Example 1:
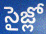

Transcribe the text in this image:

సైజ్లో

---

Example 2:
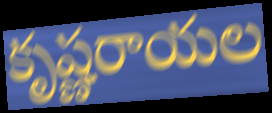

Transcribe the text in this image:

కృష్ణరాయల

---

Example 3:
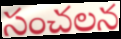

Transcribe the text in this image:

సంచలన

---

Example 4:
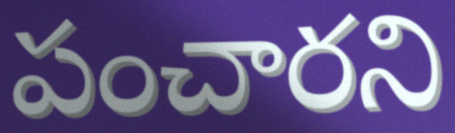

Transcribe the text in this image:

పంచారని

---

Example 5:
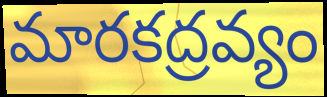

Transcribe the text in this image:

మారకద్రవ్యం